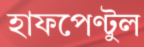
হাফপেণ্টুল